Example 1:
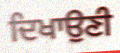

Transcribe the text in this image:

ਦਿਖਾਉਣੀ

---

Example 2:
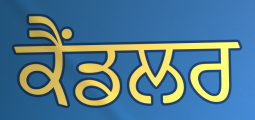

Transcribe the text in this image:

ਕੈਂਡਲਰ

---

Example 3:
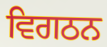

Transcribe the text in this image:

ਵਿਗਠਨ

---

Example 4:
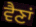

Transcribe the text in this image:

ਵੈਣਾਂ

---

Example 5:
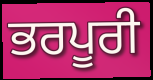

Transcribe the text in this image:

ਭਰਪੂਰੀ